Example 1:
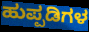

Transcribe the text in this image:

ಹುಪ್ಪಡಿಗಳ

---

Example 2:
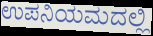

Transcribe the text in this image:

ಉಪನಿಯಮದಲ್ಲಿ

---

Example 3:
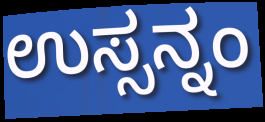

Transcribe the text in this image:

ಉಸ್ಸನ್ನಂ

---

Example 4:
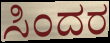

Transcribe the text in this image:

ಸಿಂದರ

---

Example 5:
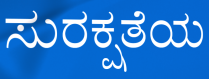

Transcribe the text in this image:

ಸುರಕ್ಷತೆಯ